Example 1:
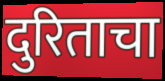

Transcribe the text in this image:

दुरिताचा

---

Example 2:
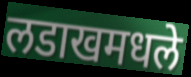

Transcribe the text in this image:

लडाखमधले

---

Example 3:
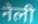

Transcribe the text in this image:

नेली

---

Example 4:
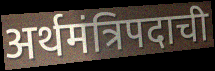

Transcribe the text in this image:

अर्थमंत्रिपदाची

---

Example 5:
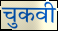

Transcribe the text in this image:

चुकवी